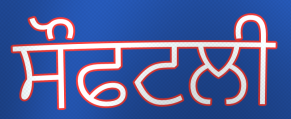
ਸੌਫਟਲੀ